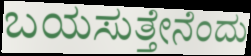
ಬಯಸುತ್ತೇನೆಂದು